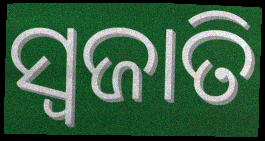
ସ୍ବଜାତି